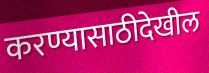
करण्यासाठीदेखील